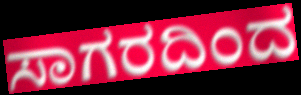
ಸಾಗರದಿಂದ